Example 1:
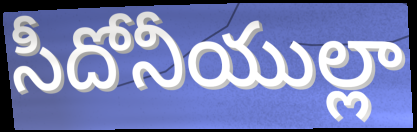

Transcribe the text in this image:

సీదోనీయుల్లా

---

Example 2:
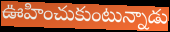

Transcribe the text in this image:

ఊహించుకుంటున్నాడు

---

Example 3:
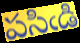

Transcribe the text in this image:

పసిఁడి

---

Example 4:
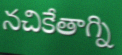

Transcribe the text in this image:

నచికేతాగ్ని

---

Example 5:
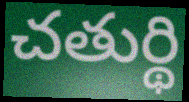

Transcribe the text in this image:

చతుర్థి